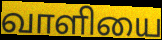
வாளியை